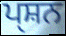
ਪੑਸ਼ਨ